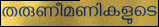
തരുണീമണികളുടെ